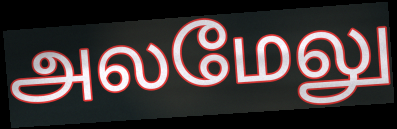
அலமேலு